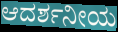
ಆದರ್ಶನೀಯ